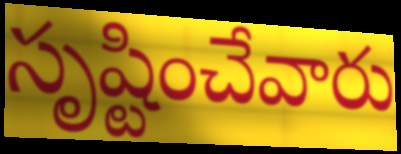
సృష్టించేవారు